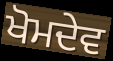
ਖੋਮਦੇਵ